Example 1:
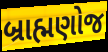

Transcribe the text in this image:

બ્રાહ્મણોજ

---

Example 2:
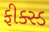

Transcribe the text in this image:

ફીક્સ્ડ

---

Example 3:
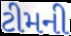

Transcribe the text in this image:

ટીમની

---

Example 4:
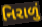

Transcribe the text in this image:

નિરાળું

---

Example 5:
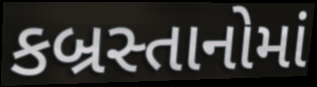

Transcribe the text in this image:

કબ્રસ્તાનોમાં